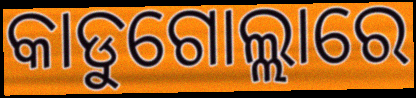
କାଡୁଗୋଲ୍ଲାରେ